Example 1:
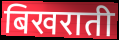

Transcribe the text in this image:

बिखराती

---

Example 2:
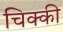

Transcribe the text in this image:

चिक्की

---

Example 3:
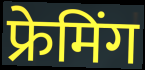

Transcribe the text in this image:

फ्रेमिंग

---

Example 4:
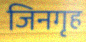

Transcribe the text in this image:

जिनगृह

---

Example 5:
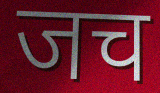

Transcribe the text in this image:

जच